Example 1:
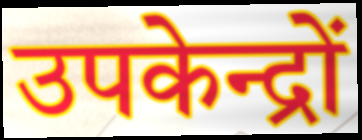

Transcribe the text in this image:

उपकेन्द्रों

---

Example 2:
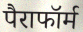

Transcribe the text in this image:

पैराफॉर्म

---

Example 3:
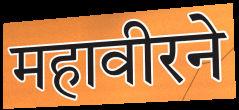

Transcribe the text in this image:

महावीरने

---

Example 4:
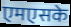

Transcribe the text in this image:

एमएसके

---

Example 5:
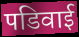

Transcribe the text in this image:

पडिवाई